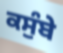
ਕਸੁੰਬੇ